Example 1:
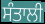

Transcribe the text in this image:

ਸੰਤਾਲੀ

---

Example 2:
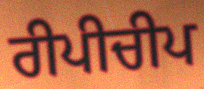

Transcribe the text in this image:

ਰੀਪੀਚੀਪ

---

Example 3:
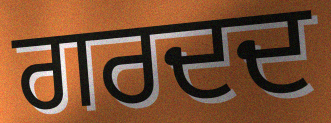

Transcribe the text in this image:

ਗਰਦਦ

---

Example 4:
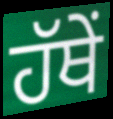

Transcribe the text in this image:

ਹੱਥੇਂ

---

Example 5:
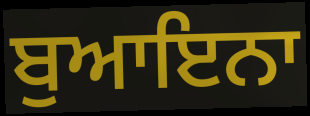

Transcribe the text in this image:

ਬੁਆਇਨਾ